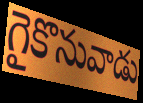
గైకొనువాడు